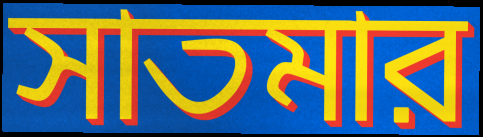
সাতমার